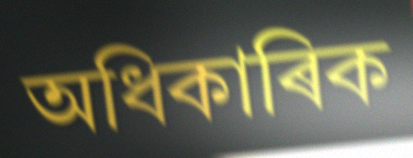
অধিকাৰিক